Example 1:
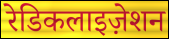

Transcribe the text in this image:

रेडिकलाइज़ेशन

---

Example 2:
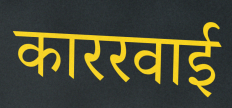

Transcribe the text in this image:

काररवाई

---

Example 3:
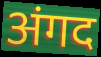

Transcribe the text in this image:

अंगद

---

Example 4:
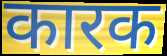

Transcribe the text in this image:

कारक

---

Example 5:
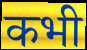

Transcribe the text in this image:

कभी